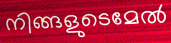
നിങ്ങളുടെമേൽ